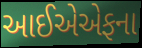
આઈએએફના